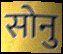
सोनु